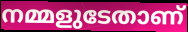
നമ്മളുടേതാണ്